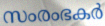
സംരംഭകർ